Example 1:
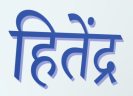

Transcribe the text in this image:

हितेंद्र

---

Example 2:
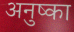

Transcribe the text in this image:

अनुष्का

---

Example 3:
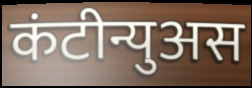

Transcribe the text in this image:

कंटीन्युअस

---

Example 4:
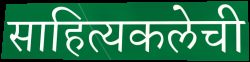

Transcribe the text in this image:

साहित्यकलेची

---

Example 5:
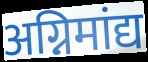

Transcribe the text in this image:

अग्निमांद्य